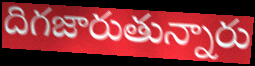
దిగజారుతున్నారు